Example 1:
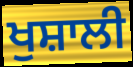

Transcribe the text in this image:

ਖੁਸ਼ਾਲੀ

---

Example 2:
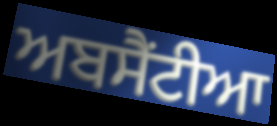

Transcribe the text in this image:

ਅਬਸੈਂਟੀਆ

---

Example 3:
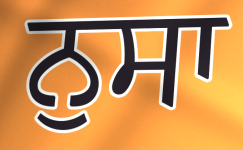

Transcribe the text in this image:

ਨੁਸਾ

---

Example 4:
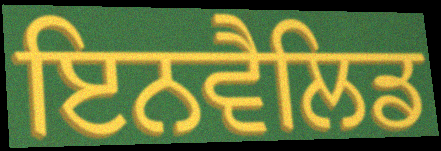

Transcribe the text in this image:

ਇਨਵੈਲਿਡ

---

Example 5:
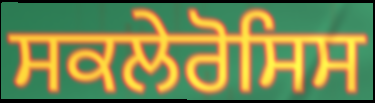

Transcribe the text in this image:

ਸਕਲੇਰੋਸਿਸ